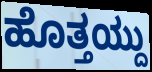
ಹೊತ್ತಯ್ದು